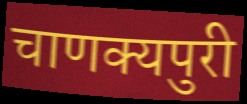
चाणक्यपुरी